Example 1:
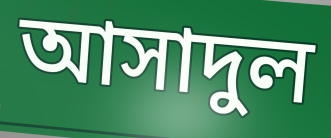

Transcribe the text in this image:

আসাদুল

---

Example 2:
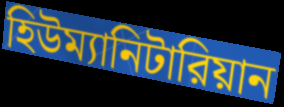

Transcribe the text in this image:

হিউম্যানিটারিয়ান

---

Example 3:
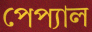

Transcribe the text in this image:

পেপ্যাল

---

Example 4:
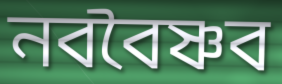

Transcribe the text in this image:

নববৈষ্ণব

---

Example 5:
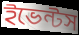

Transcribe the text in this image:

ইভেন্টস